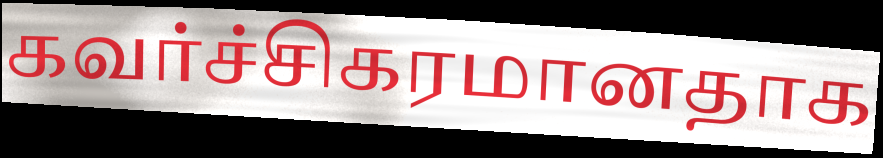
கவர்ச்சிகரமானதாக